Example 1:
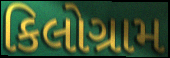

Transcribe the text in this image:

કિલોગ્રામ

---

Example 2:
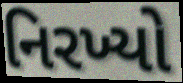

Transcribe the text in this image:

નિરખ્યો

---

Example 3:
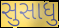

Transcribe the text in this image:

સુસાધુ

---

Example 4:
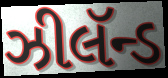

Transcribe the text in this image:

ઝીલૅન્ડ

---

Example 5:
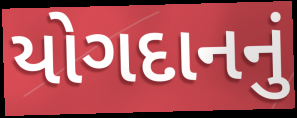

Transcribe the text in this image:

યોગદાનનું